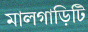
মালগাড়িটি